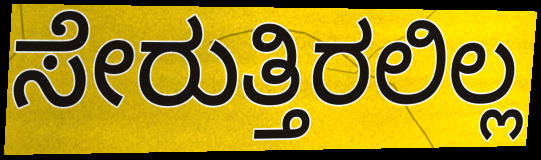
ಸೇರುತ್ತಿರಲಿಲ್ಲ